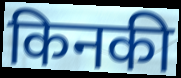
किनकी